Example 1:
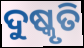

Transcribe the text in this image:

ଦୁଷ୍କୃତି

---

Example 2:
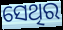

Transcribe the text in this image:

ସେଥିର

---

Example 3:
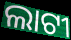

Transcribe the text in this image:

ଲାଟୀ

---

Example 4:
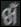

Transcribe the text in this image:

ଖଁ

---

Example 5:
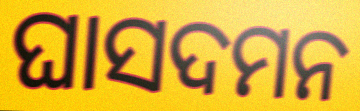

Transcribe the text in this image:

ଘାସଦମନ